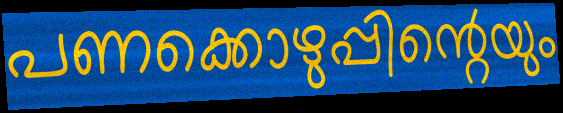
പണക്കൊഴുപ്പിന്റെയും